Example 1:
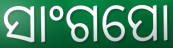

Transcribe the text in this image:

ସାଂଗପୋ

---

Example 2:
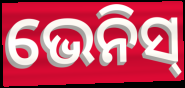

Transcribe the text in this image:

ଭେନିସ୍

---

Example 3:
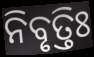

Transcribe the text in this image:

ନିବୃତ୍ତିଃ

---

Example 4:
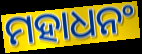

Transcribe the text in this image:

ମହାଧନଂ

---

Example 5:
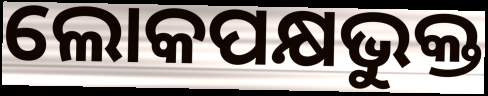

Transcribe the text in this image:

ଲୋକପକ୍ଷଭୁକ୍ତ